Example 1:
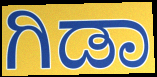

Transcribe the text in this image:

ಗಿಡಾ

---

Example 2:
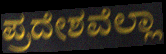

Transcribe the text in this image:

ಪ್ರದೇಶವೆಲ್ಲಾ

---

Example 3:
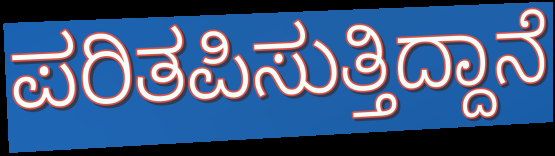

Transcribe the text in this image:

ಪರಿತಪಿಸುತ್ತಿದ್ದಾನೆ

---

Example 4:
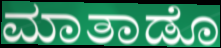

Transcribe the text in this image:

ಮಾತಾಡೊ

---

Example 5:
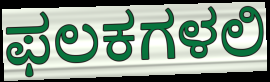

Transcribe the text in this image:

ಫಲಕಗಳಲಿ